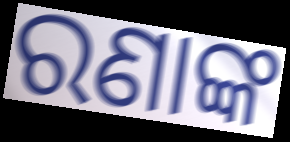
ରଣାଙ୍କ